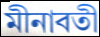
মীনাবতী